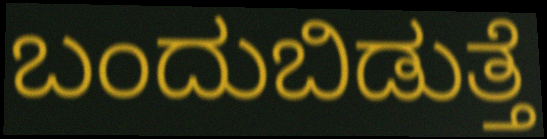
ಬಂದುಬಿಡುತ್ತೆ